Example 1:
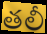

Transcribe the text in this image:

తలీ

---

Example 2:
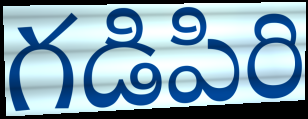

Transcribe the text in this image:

గడిపిరి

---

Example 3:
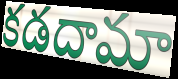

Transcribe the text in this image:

కడదామా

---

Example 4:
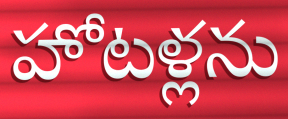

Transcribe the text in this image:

హోటళ్లను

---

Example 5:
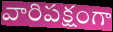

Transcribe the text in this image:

వారిపక్షంగా